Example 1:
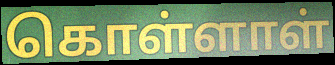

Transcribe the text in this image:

கொள்ளாள்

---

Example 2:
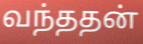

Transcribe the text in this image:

வந்ததன்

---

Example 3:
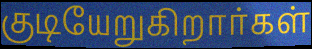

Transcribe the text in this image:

குடியேறுகிறார்கள்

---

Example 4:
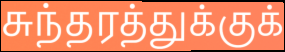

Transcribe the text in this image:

சுந்தரத்துக்குக்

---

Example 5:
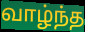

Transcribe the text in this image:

வாழ்ந்த